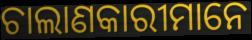
ଚାଲାଣକାରୀମାନେ